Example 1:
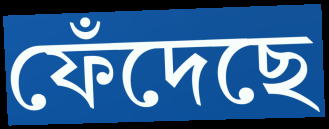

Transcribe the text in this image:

ফেঁদেছে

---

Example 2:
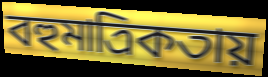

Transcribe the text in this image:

বহুমাত্রিকতায়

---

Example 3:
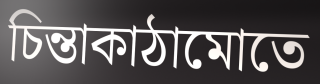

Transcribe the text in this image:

চিন্তাকাঠামোতে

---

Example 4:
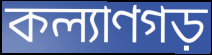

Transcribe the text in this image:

কল্যাণগড়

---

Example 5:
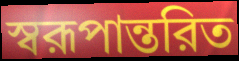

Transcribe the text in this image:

স্বরূপান্তরিত